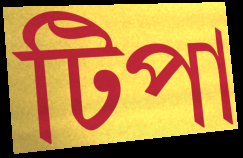
টিপা